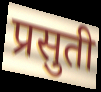
प्रसुती